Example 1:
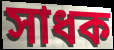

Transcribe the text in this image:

সাধক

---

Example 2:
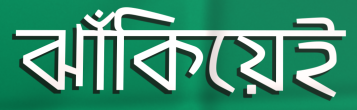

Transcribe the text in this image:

ঝাঁকিয়েই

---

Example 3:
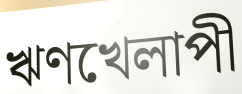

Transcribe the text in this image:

ঋণখেলাপী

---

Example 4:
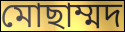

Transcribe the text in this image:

মোছাম্মদ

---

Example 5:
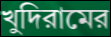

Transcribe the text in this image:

খুদিরামের